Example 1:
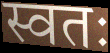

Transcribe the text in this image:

स्वतः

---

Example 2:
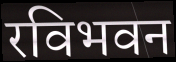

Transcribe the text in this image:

रविभवन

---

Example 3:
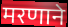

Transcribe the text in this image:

मरणाने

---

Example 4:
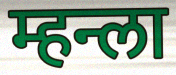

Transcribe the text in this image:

म्हन्ला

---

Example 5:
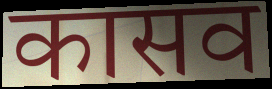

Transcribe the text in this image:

कासव